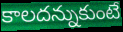
కాలదన్నుకుంటే